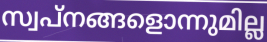
സ്വപ്നങ്ങളൊന്നുമില്ല